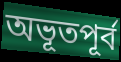
অভূতপূর্ব